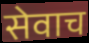
सेवाच